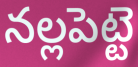
నల్లపెట్టె